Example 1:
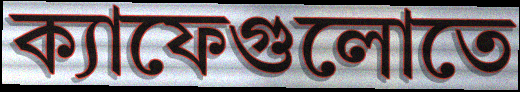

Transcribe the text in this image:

ক্যাফেগুলোতে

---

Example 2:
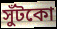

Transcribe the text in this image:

সুঁটকো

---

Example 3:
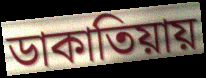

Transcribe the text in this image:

ডাকাতিয়ায়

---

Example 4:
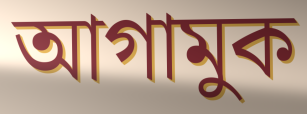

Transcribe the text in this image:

আগামুক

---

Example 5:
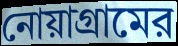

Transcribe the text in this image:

নোয়াগ্রামের